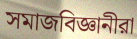
সমাজবিজ্ঞানীরা